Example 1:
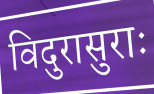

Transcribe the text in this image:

विदुरासुराः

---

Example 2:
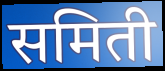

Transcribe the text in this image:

समिती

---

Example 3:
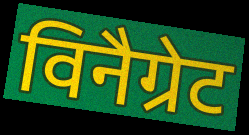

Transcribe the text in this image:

विनैग्रेट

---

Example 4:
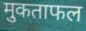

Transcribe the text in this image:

मुकताफल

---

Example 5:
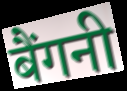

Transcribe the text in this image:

बैंगनी